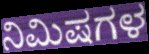
ನಿಮಿಷಗಳ